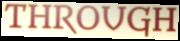
THROUGH